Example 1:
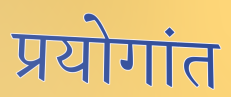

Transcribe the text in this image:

प्रयोगांत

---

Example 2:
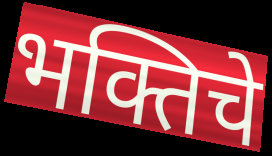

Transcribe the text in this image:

भक्तिचे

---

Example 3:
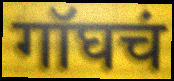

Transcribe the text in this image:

गॉघचं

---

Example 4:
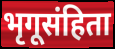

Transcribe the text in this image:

भृगूसंहिता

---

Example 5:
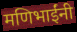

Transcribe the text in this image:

मणिभाईंनी